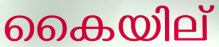
കൈയില്